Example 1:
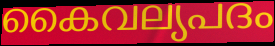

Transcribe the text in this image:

കൈവല്യപദം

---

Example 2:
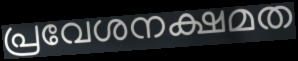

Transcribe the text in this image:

പ്രവേശനക്ഷമത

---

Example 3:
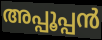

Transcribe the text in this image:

അപ്പൂപ്പൻ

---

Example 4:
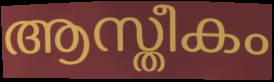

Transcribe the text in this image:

ആസ്തീകം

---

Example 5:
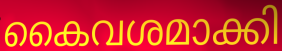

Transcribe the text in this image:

കൈവശമാക്കി